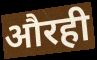
औरही